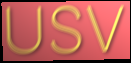
USV